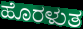
ಹೊರಳುತ